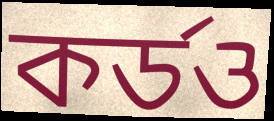
কর্ডও